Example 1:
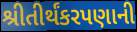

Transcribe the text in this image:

શ્રીતીર્થંકરપણાની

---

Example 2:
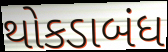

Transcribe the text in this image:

થોકડાબંધ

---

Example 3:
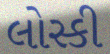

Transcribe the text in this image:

લોસ્કી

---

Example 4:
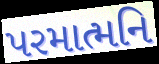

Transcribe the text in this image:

પરમાત્મનિ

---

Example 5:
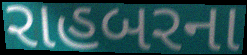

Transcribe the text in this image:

રાહબરના